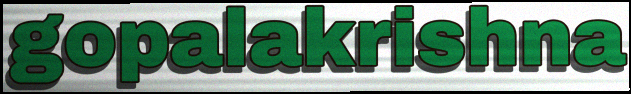
gopalakrishna